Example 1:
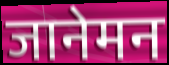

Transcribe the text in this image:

जानेमन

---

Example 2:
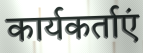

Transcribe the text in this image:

कार्यकर्ताएं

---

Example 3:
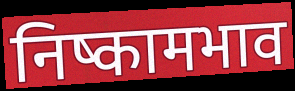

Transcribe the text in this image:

निष्कामभाव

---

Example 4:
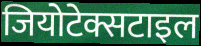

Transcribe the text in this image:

जियोटेक्सटाइल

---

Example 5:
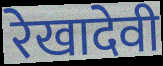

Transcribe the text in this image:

रेखादेवी